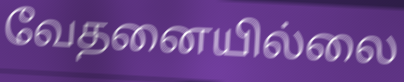
வேதனையில்லை